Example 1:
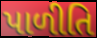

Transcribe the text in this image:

પાળીતિ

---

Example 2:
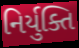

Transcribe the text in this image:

નિર્યુક્તિ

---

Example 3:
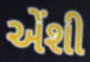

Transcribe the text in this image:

એંશી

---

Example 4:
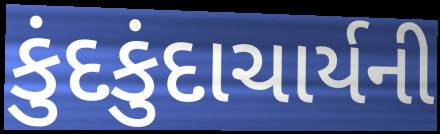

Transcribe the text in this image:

કુંદકુંદાચાર્યની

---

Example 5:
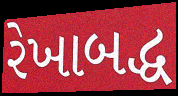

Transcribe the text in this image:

રેખાબદ્ધ